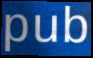
pub